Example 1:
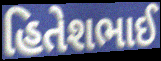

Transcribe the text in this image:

હિતેશભાઈ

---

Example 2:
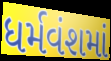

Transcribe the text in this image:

ધર્મવંશમાં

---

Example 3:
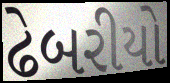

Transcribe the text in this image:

ઢેબરીયો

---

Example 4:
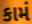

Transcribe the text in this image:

કામં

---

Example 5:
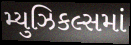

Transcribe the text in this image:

મ્યુઝિકલ્સમાં